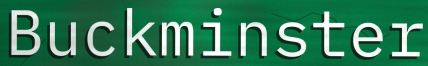
Buckminster